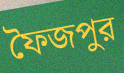
ফৈজপুর